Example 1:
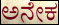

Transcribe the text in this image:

ಅನೇಕ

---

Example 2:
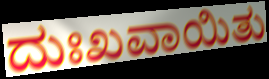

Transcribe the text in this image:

ದುಃಖವಾಯಿತು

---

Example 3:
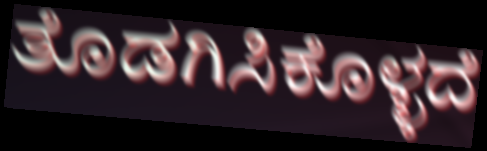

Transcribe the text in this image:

ತೊಡಗಿಸಿಕೊಳ್ಳದೆ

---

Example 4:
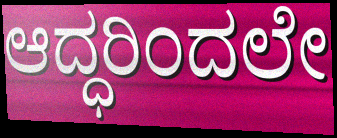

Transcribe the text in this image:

ಆದ್ಧರಿಂದಲೇ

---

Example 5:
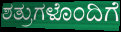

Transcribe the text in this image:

ಶತ್ರುಗಳೊಂದಿಗೆ